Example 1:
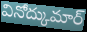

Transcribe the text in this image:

వినోద్కుమార్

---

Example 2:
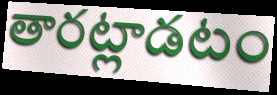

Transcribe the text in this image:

తారట్లాడటం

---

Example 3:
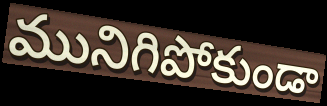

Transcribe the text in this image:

మునిగిపోకుండా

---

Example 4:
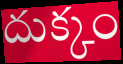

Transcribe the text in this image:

దుక్కం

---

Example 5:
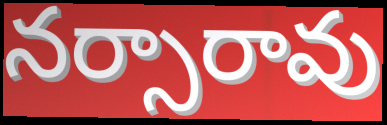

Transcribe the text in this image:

నర్సారావు